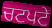
ਚਟਪਟੇ